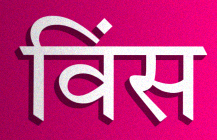
विंस